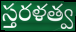
స్తరళత్వ